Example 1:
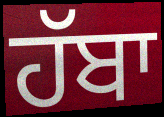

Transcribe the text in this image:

ਹੱਬਾ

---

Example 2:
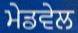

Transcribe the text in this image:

ਮੇਡਵੇਲ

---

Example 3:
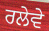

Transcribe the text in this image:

ਰਲੇਵੇ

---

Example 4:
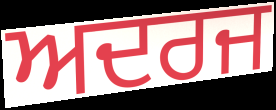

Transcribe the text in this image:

ਅਦਰਜ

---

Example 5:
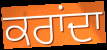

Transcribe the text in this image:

ਕਰਾਂਦਾ